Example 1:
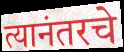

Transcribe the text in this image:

त्यानंतरचे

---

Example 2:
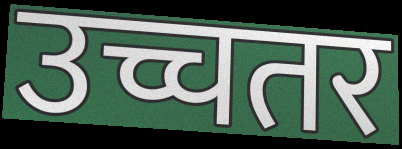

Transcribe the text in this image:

उच्चतर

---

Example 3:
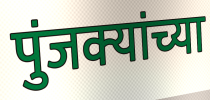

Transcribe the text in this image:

पुंजक्यांच्या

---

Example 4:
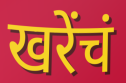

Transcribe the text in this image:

खरेंचं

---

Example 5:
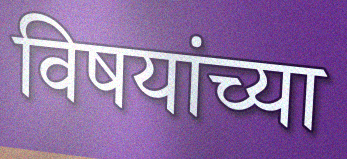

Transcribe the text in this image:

विषयांच्या